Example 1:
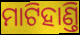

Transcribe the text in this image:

ମାଟିହାଣ୍ତି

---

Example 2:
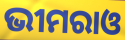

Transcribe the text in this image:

ଭୀମରାଓ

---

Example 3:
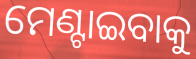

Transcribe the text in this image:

ମେଣ୍ଟାଇବାକୁ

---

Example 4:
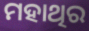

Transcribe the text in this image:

ମହାଥିର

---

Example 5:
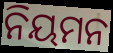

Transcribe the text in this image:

ନିୟମନ